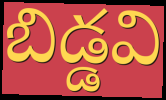
బిడ్డవి